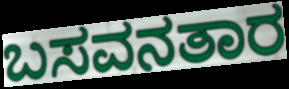
ಬಸವನತಾರ